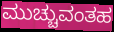
ಮುಚ್ಚುವಂತಹ